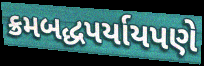
ક્રમબદ્ધપર્યાયપણે